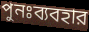
পুনঃব্যবহার